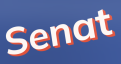
Senat